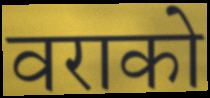
वराको